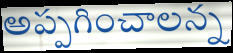
అప్పగించాలన్న